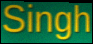
Singh